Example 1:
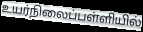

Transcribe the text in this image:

உயர்நிலைப்பள்ளியில்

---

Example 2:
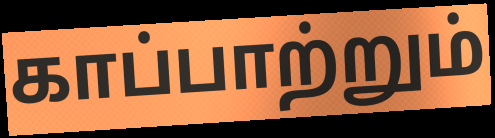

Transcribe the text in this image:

காப்பாற்றும்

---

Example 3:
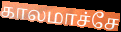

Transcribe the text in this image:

காலமாச்சே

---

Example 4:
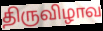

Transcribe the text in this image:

திருவிழாவ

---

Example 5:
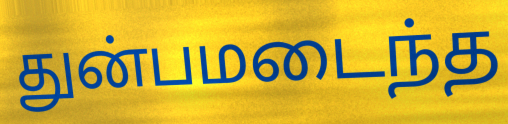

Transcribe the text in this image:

துன்பமடைந்த